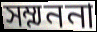
সম্মননা